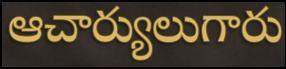
ఆచార్యులుగారు